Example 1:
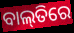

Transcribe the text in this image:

ବାଲ୍‌ତିରେ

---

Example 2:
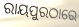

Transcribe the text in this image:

ରାୟପୁରଠାରେ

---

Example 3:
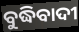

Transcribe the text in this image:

ବୁଦ୍ଧିବାଦୀ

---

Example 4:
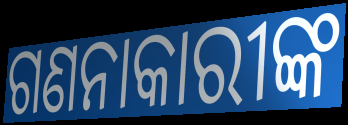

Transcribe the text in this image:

ଗଣନାକାରୀଙ୍କ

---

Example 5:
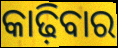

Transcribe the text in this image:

କାଢ଼ିବାର